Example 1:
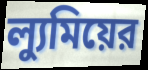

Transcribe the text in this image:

ল্যুমিয়ের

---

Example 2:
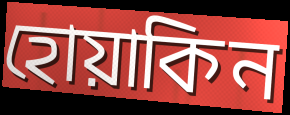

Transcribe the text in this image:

হোয়াকিন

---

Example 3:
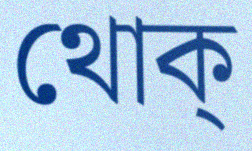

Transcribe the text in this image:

থোক্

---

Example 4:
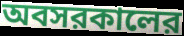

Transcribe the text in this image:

অবসরকালের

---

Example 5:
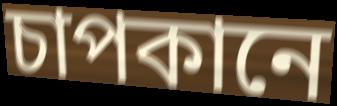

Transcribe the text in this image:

চাপকানে